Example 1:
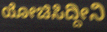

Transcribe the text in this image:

ಯೋಚಿಸಿದ್ದೀನಿ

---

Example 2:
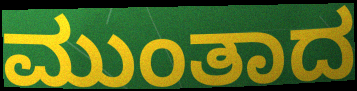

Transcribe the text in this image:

ಮುಂತಾದ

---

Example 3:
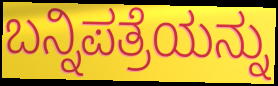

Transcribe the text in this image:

ಬನ್ನಿಪತ್ರೆಯನ್ನು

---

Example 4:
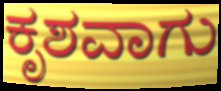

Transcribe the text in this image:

ಕೃಶವಾಗು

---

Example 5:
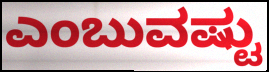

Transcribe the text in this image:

ಎಂಬುವಷ್ಟು